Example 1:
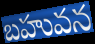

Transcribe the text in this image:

బహువన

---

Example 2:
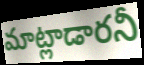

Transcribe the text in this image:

మాట్లాడారనీ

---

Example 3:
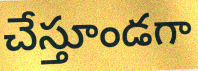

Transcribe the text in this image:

చేస్తూండగా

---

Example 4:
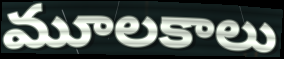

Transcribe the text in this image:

మూలకాలు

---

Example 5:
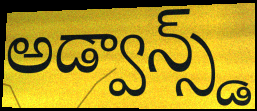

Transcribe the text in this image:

అడ్వాన్స్డ్